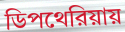
ডিপথেরিয়ায়